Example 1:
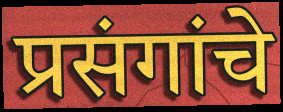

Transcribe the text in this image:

प्रसंगांचे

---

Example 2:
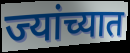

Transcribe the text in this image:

ज्यांच्यात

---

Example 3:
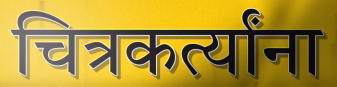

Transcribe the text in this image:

चित्रकर्त्यांना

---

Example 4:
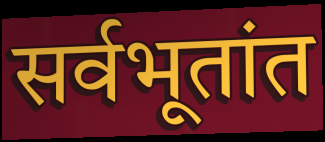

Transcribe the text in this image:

सर्वभूतांत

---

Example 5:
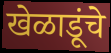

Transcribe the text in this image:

खेळाडूंचे